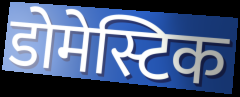
डोमेस्टिक